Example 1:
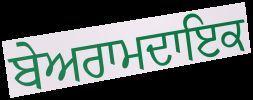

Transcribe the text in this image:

ਬੇਅਰਾਮਦਾਇਕ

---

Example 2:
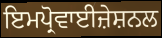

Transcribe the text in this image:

ਇਮਪ੍ਰੋਵਾਈਜ਼ੇਸ਼ਨਲ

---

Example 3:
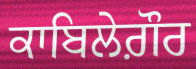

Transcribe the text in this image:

ਕਾਬਿਲੇਗ਼ੌਰ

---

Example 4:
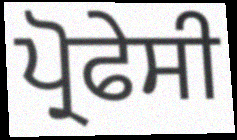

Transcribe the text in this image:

ਪ੍ਰੋਫੇਸੀ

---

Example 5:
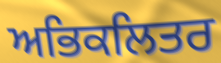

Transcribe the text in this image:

ਅਭਿਕਲਿਤਰ